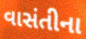
વાસંતીના